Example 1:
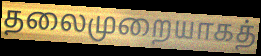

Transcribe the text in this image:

தலைமுறையாகத்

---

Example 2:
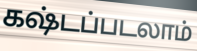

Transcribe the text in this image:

கஷ்டப்படலாம்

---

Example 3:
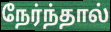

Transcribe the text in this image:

நேர்ந்தால்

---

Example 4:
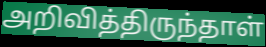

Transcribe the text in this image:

அறிவித்திருந்தாள்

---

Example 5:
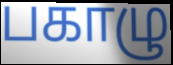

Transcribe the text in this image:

பகாழு